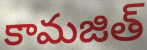
కామజిత్